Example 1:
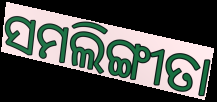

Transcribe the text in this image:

ସମଲିଙ୍ଗୀତା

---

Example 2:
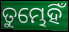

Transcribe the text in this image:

ତୁମ୍ଭେହିଁ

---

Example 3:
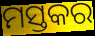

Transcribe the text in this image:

ମସ୍ତକର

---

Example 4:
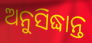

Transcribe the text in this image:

ଅନୁସିଦ୍ଧାନ୍ତ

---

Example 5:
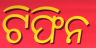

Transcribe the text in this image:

ଟିଫିନ